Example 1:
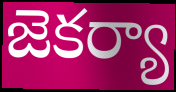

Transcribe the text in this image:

జెకర్యా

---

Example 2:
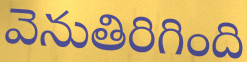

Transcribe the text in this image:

వెనుతిరిగింది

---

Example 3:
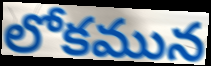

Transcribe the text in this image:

లోకమున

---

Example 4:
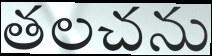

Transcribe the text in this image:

తలచను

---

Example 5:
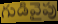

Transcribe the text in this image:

గుడివైపు